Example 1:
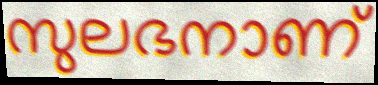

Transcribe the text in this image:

സുലഭനാണ്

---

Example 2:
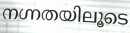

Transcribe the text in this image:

നഗ്നതയിലൂടെ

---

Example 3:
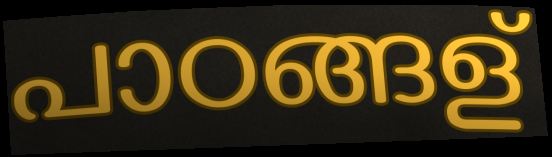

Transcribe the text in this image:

പാഠങ്ങള്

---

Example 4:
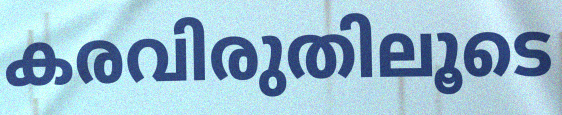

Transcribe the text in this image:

കരവിരുതിലൂടെ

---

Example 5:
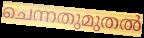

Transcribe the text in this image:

ചെന്നതുമുതൽ